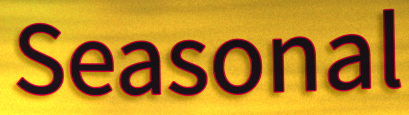
Seasonal